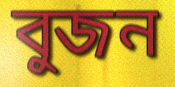
বুজন